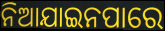
ନିଆଯାଇନପାରେ